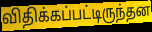
விதிக்கப்பட்டிருந்தன